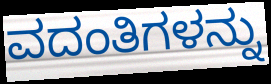
ವದಂತಿಗಳನ್ನು